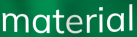
material